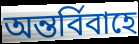
অন্তর্বিবাহে